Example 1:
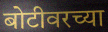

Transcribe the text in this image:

बोटीवरच्या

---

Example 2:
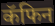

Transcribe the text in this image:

कॅफिन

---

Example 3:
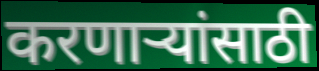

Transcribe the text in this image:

करणाऱ्यांसाठी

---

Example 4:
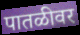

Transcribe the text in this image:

पातळीवर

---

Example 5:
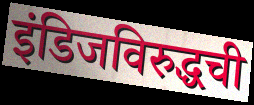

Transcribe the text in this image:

इंडिजविरुद्धची